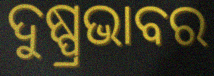
ଦୁଷ୍ପ୍ରଭାବର